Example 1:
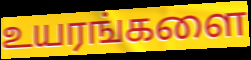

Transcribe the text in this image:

உயரங்களை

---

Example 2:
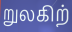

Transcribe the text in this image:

றுலகிற்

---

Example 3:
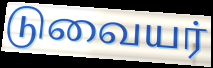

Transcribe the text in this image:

டுவையர்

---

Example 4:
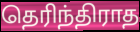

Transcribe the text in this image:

தெரிந்திராத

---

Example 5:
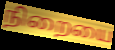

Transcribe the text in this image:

நிறையை